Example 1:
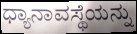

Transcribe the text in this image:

ಧ್ಯಾನಾವಸ್ಥೆಯನ್ನು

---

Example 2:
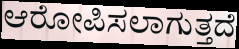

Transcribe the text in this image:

ಆರೋಪಿಸಲಾಗುತ್ತದೆ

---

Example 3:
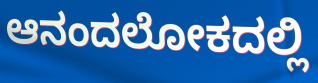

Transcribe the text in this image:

ಆನಂದಲೋಕದಲ್ಲಿ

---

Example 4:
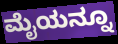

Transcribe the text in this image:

ಮೈಯನ್ನೂ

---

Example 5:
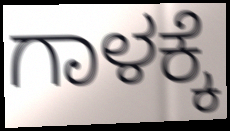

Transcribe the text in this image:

ಗಾಳಕ್ಕೆ